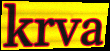
krva